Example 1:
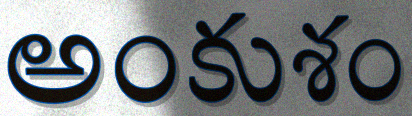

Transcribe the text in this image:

అంకుశం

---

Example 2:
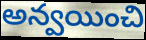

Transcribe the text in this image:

అన్వయించి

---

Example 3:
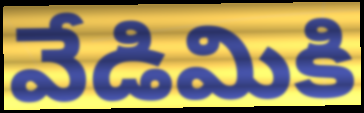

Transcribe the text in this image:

వేడిమికి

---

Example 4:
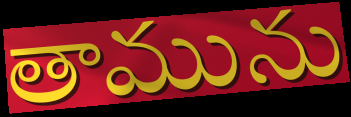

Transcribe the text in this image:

తామును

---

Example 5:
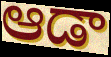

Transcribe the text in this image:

ఆడా